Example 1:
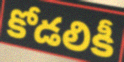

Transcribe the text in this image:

కోడలికీ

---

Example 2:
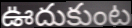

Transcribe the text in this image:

ఊదుకుంట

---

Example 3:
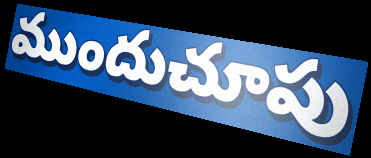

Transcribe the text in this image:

ముందుచూపు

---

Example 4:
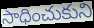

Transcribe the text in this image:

సాధించుకుని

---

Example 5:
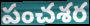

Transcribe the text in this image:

పంచశర